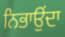
ਨਿਭਾਉਂਦਾ